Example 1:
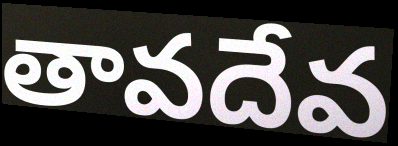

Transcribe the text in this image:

తావదేవ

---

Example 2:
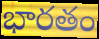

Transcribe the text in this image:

భారతం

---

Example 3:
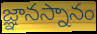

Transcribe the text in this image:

జ్ఞానస్నానం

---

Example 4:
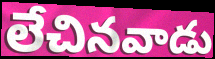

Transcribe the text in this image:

లేచినవాడు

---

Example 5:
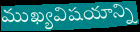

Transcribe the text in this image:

ముఖ్యవిషయాన్ని